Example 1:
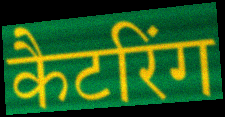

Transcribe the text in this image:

कैटरिंग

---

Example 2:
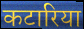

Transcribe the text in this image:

कटारिया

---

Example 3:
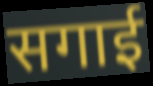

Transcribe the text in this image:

सगाई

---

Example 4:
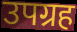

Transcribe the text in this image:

उपग्रह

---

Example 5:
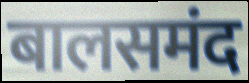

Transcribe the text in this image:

बालसमंद